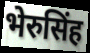
भेरुसिंह